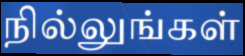
நில்லுங்கள்